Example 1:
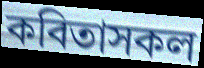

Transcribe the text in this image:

কবিতাসকল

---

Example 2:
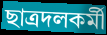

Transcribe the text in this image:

ছাত্রদলকর্মী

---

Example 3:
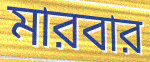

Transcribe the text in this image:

মারবার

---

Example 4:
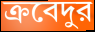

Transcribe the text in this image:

ক্রবেদুর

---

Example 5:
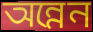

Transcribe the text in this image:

অন্নেন